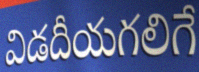
విడదీయగలిగే